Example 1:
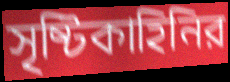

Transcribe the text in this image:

সৃষ্টিকাহিনির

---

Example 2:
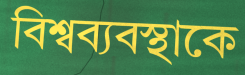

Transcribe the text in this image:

বিশ্বব্যবস্থাকে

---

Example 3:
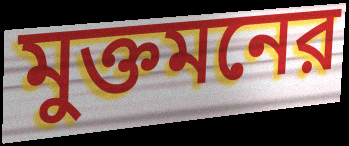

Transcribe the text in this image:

মুক্তমনের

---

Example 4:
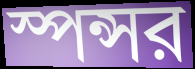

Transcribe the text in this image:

স্পন্সর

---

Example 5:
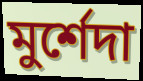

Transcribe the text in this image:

মুর্শেদা